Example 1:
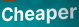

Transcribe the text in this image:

Cheaper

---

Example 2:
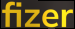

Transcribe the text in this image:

fizer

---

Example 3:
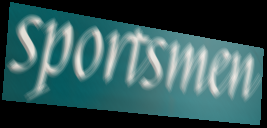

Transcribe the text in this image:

sportsmen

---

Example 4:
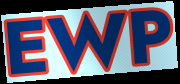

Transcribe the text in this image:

EWP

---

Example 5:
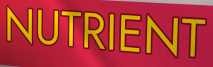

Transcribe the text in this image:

NUTRIENT